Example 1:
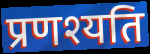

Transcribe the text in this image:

प्रणश्यति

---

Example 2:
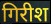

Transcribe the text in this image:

गिरीश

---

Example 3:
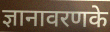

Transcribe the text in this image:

ज्ञानावरणके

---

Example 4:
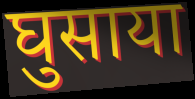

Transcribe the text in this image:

घुसाया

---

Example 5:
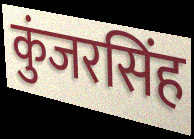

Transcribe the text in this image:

कुंजरसिंह